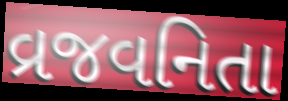
વ્રજવનિતા